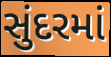
સુંદરમાં